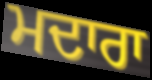
ਮਦਾਰਾ